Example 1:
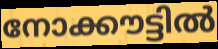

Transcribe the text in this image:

നോക്കൗട്ടിൽ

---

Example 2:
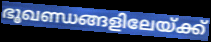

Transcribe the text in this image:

ഭൂഖണ്ഡങ്ങളിലേയ്ക്ക്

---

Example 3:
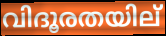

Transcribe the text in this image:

വിദൂരതയില്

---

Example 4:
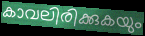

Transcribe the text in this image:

കാവലിരിക്കുകയും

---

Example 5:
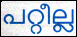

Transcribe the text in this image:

പറ്റീല്ല